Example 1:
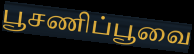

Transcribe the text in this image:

பூசணிப்பூவை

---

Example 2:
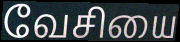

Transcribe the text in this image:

வேசியை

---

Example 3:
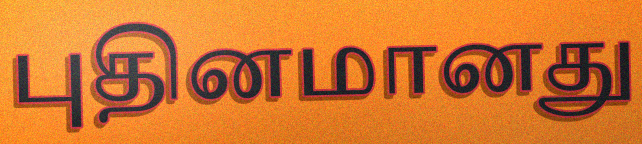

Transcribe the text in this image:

புதினமானது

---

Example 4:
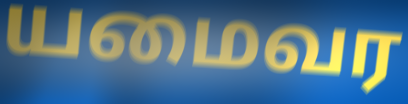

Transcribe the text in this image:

யமைவர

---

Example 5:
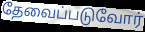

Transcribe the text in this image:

தேவைப்படுவோர்